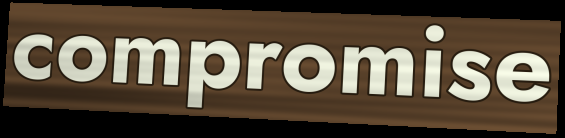
compromise